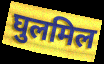
घुलमिल